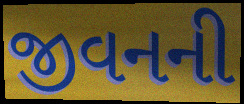
જીવનની